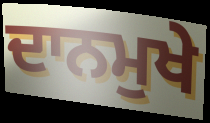
ਦਾਨਮੁਖੇ